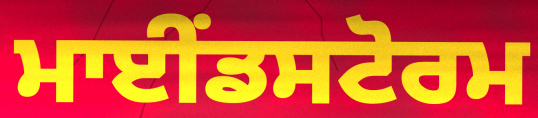
ਮਾਈਂਡਸਟੋਰਮ